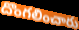
దొంగలించారు